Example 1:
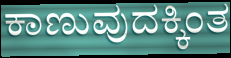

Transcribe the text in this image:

ಕಾಣುವುದಕ್ಕಿಂತ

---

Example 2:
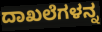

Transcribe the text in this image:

ದಾಖಲೆಗಳನ್ನ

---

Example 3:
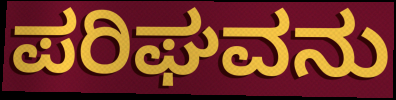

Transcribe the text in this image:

ಪರಿಘವನು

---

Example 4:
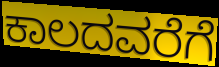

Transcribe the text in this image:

ಕಾಲದವರೆಗೆ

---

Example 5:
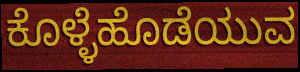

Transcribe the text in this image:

ಕೊಳ್ಳೆಹೊಡೆಯುವ